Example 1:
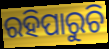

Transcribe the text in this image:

ରହିପାରୁଚି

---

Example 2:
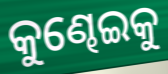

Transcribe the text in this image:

କୁଣ୍ଢେଇକୁ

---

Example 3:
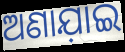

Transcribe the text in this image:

ଅଣାଯ଼ାଇ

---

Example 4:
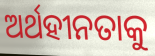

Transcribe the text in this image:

ଅର୍ଥହୀନତାକୁ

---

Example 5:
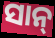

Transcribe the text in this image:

ସାନ୍